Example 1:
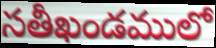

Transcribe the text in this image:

సతీఖండములో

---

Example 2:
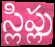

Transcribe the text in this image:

స్లిప్లు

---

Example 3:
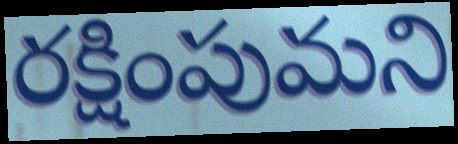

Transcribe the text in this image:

రక్షింపుమని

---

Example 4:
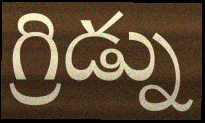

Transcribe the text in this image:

గ్రిడ్ను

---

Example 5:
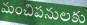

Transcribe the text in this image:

మంచిపనులకు